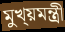
মুখ্য়মন্ত্রী